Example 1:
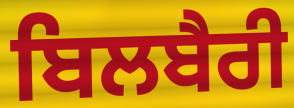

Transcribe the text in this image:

ਬਿਲਬੈਰੀ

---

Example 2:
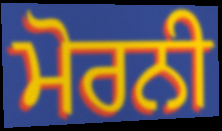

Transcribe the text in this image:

ਮੋਰਨੀ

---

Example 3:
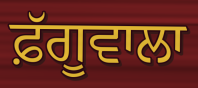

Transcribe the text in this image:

ਫ਼ੱਗੂਵਾਲਾ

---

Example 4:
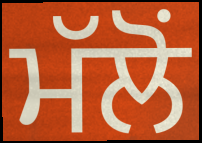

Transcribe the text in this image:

ਮੱਲੋਂ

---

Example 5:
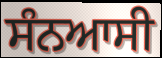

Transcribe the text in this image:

ਸੰਨਆਸੀ